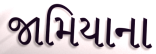
જામિયાના